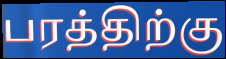
பரத்திற்கு